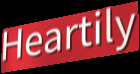
Heartily